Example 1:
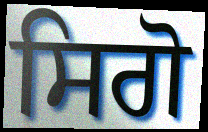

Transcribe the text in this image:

ਸਿਗੋ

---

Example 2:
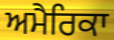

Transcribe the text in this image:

ਅਮੈਰਿਕਾ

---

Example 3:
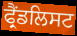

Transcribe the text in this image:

ਫ੍ਰੈਂਡਲਿਸਟ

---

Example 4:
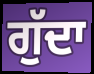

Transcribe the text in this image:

ਗੁੱਦਾ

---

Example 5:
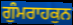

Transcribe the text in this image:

ਗੁੰਮਰਾਹਕੁਨ